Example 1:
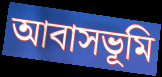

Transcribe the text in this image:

আবাসভূমি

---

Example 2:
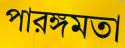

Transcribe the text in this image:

পারঙ্গমতা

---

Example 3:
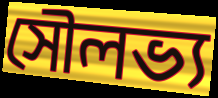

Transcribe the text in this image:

সৌলভ্য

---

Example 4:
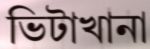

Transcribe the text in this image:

ভিটাখানা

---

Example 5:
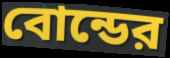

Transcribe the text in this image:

বোন্ডের